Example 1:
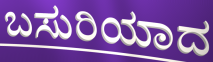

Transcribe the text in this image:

ಬಸುರಿಯಾದ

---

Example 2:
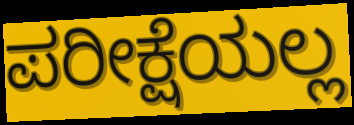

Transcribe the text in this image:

ಪರೀಕ್ಷೆಯಲ್ಲ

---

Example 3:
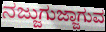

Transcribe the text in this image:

ನಜ್ಜುಗುಜ್ಜಾಗುವ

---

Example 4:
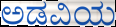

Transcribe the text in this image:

ಅಡವಿಯ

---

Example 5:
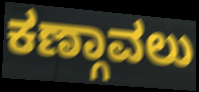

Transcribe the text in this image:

ಕಣ್ಗಾವಲು